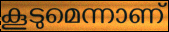
കൂടുമെന്നാണ്